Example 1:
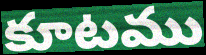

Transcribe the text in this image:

కూటము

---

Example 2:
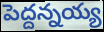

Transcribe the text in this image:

పెద్దన్నయ్య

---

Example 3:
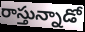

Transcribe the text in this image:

రాస్తున్నాడో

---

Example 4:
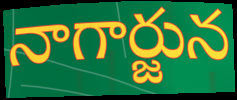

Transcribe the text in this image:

నాగార్జున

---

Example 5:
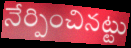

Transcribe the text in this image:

నేర్పించినట్టు